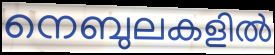
നെബുലകളിൽ